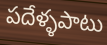
పదేళ్ళపాటు